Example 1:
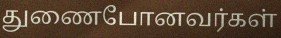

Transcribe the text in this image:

துணைபோனவர்கள்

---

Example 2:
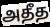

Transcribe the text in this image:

அதீத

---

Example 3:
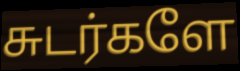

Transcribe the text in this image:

சுடர்களே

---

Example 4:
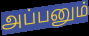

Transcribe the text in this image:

அப்பனும்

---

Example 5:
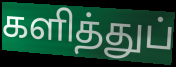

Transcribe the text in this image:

களித்துப்